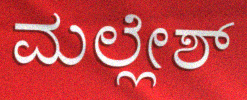
ಮಲ್ಲೇಶ್